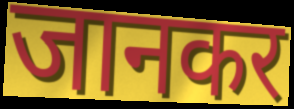
जानकर